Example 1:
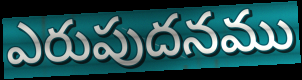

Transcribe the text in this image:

ఎరుపుదనము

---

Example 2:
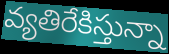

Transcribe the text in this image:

వ్యతిరేకిస్తున్నా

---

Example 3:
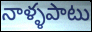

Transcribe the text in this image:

నాళ్ళపాటు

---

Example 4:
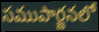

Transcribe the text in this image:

సముపార్జనలో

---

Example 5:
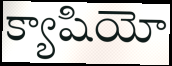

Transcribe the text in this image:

క్యాషియో